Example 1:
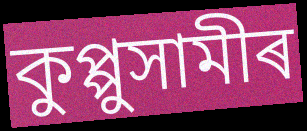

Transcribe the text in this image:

কুপ্পুসামীৰ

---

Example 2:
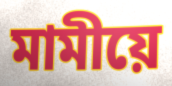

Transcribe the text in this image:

মামীয়ে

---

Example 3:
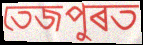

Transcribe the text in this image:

তেজপুৰত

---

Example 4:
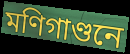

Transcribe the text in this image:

মণিগাণ্ডনে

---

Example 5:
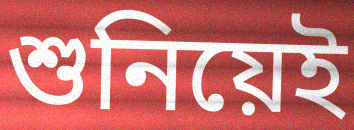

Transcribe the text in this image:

শুনিয়েই